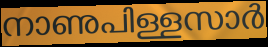
നാണുപിള്ളസാർ